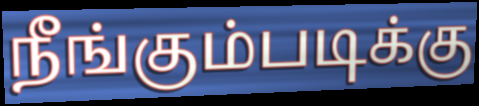
நீங்கும்படிக்கு